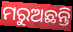
ମରୁଅଛନ୍ତି